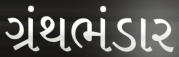
ગ્રંથભંડાર